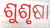
ଶୁଶୃଷା